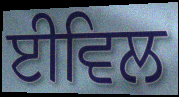
ਈਵਿਲ